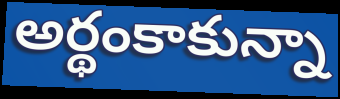
అర్థంకాకున్నా